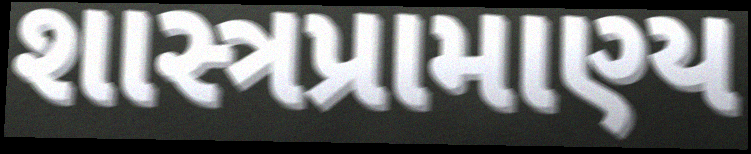
શાસ્ત્રપ્રામાણ્ય